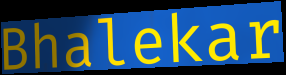
Bhalekar